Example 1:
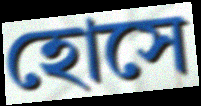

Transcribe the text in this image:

হোসে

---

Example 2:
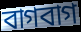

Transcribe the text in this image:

বাগবাগ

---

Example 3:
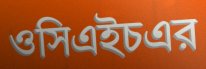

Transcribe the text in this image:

ওসিএইচএর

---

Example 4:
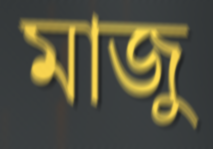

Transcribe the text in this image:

মাজু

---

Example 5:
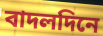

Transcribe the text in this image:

বাদলদিনে